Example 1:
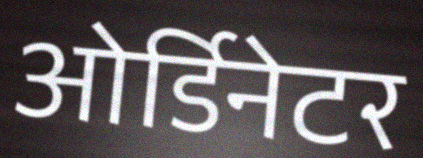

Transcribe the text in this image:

ओर्डिनेटर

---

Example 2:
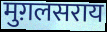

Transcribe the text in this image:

मुग़लसराय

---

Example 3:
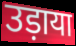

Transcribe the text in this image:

उड़ाया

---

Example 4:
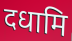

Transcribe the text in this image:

दधामि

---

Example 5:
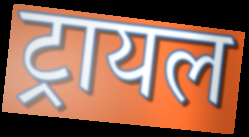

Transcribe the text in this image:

ट्रायल